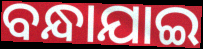
ବନ୍ଧାଯାଇ